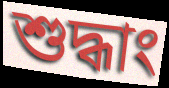
শুদ্ধাং